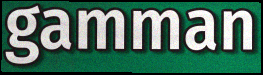
gamman